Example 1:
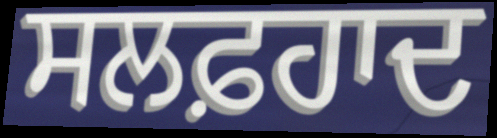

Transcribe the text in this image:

ਸਲਫ਼ਹਾਦ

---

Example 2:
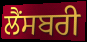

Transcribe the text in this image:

ਲੈਂਸਬਰੀ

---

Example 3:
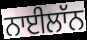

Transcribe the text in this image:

ਨਾਈਲਾੱਨ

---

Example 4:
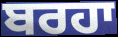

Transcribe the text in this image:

ਬਰਹਾ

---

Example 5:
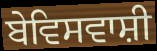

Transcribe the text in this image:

ਬੇਵਿਸਵਾਸ਼ੀ